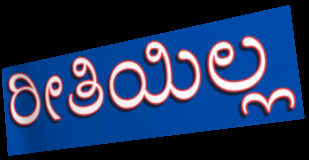
ರೀತಿಯಿಲ್ಲ